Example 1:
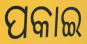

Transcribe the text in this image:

ପକାଇ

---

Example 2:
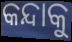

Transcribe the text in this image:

କନ୍ଦାକୁ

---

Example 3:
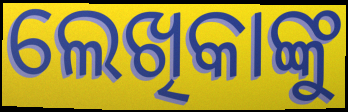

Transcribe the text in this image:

ଲେଖିକାଙ୍କୁ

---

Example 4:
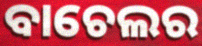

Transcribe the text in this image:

ବାଚେଲର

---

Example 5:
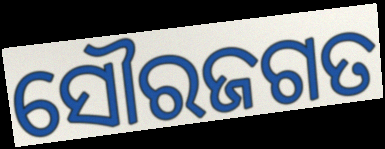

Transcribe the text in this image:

ସୌରଜଗତ